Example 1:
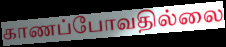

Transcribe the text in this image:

காணப்போவதில்லை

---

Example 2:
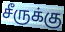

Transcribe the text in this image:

சீருக்கு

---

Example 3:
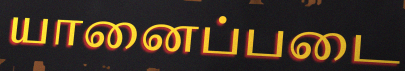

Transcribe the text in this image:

யானைப்படை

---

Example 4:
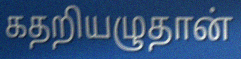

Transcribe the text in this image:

கதறியழுதான்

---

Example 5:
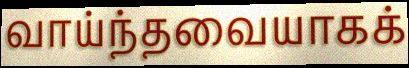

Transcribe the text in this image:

வாய்ந்தவையாகக்